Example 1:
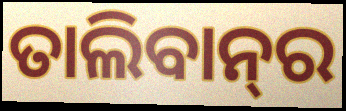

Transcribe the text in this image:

ତାଲିବାନ୍‌ର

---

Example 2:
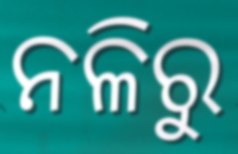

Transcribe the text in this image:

ନଳିରୁ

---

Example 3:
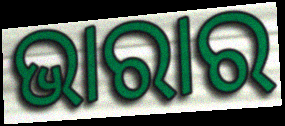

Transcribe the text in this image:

ଭାରାର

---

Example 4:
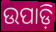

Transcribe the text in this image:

ଉପାଡ଼ି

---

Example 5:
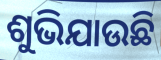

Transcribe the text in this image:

ଶୁଭିଯାଉଛି